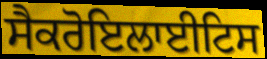
ਸੈਕਰੋਇਲਾਈਟਿਸ